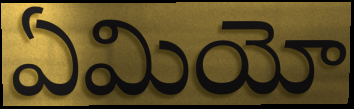
ఏమియో